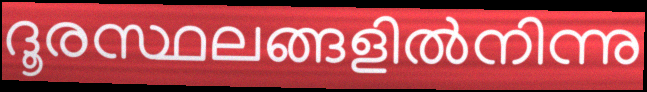
ദൂരസ്ഥലങ്ങളിൽനിന്നു